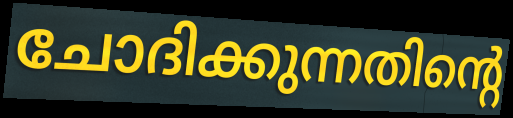
ചോദിക്കുന്നതിന്റെ